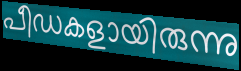
പീഡകളായിരുന്നു